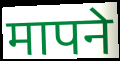
मापने